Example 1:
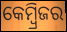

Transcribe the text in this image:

କେମ୍ୱ୍ରିଜର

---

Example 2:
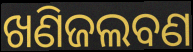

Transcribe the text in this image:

ଖଣିଜଲବଣ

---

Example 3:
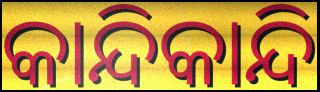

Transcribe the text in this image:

କାନ୍ଦିକାନ୍ଦି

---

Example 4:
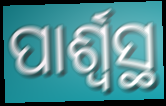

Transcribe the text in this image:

ପାର୍ଶ୍ୱସ୍ଥ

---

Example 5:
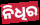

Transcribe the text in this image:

ନିଧିର